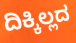
ದಿಕ್ಕಿಲ್ಲದ